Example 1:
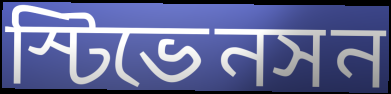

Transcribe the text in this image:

স্টিভেনসন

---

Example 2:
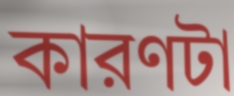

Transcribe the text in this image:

কারণটা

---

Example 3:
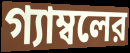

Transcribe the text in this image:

গ্যাম্বলের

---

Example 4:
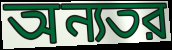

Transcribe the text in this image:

অন্যতর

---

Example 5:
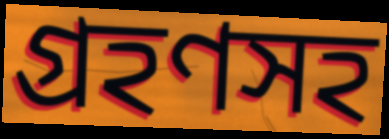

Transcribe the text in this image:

গ্রহণসহ